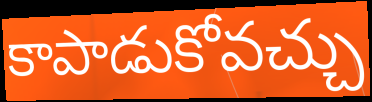
కాపాడుకోవచ్చు